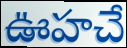
ఊహచే